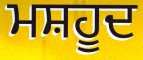
ਮਸ਼ਹੂਦ